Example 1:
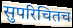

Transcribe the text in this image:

सुपरिचितच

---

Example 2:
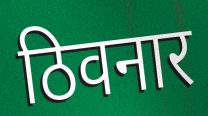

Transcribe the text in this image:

ठिवनार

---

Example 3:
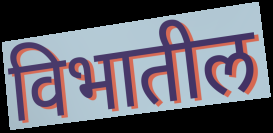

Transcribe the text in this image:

विभातील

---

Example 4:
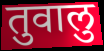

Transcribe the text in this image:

तुवालु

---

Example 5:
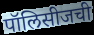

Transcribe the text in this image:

पॉलिसीजची